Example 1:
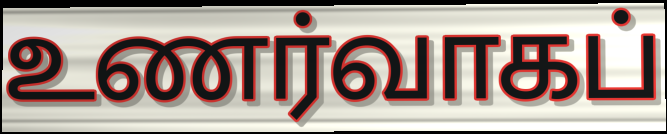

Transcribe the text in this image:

உணர்வாகப்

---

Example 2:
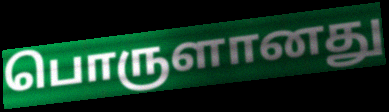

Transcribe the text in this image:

பொருளானது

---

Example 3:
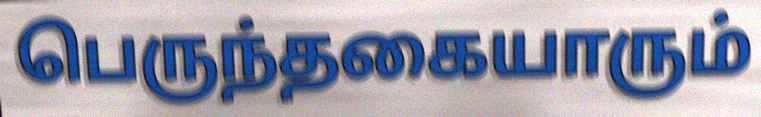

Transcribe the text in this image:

பெருந்தகையாரும்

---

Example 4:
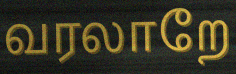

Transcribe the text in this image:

வரலாறே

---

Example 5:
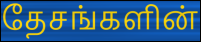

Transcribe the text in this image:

தேசங்களின்